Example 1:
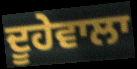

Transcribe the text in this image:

ਦੂਹੇਵਾਲਾ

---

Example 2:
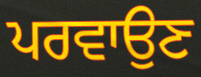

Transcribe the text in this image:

ਪਰਵਾਉਣ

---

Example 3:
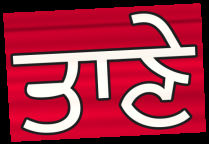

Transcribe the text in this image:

ਤਾਣੇ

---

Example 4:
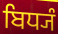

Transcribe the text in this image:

ਬਿਧ੍ਯੰ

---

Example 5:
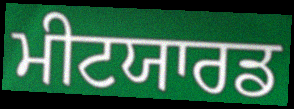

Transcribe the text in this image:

ਮੀਟਯਾਰਡ